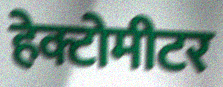
हेक्टोमीटर